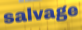
salvage